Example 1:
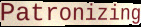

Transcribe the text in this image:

Patronizing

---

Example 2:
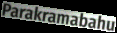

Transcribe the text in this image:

Parakramabahu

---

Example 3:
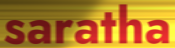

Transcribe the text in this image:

saratha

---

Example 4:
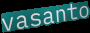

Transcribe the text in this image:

vasanto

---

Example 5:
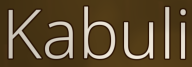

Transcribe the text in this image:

Kabuli